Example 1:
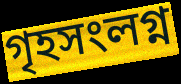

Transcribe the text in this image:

গৃহসংলগ্ন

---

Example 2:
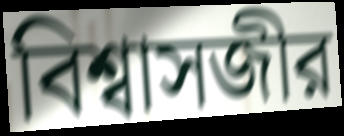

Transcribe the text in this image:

বিশ্বাসজীর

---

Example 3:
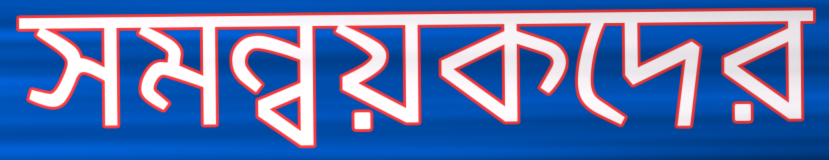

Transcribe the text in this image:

সমন্বয়কদের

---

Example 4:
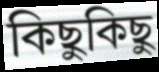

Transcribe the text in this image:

কিছুকিছু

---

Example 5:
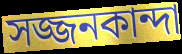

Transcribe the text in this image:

সজ্জনকান্দা